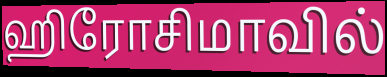
ஹிரோசிமாவில்